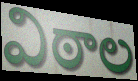
విఠాల